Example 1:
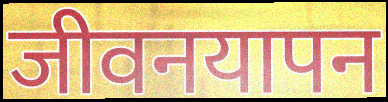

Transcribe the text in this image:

जीवनयापन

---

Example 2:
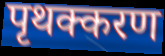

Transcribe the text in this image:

पृथक्करण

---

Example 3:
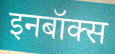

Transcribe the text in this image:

इनबॉक्स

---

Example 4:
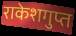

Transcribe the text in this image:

राकेशगुप्त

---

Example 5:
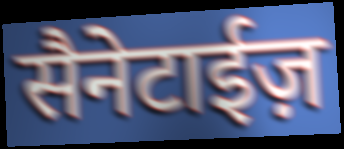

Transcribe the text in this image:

सैनेटाईज़